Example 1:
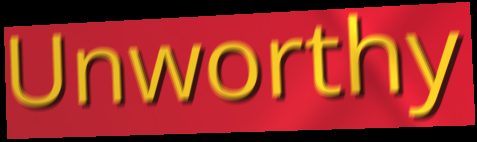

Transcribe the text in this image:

Unworthy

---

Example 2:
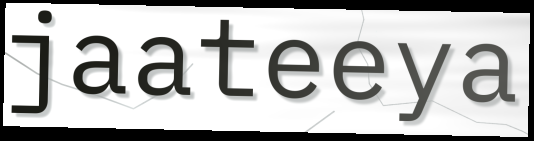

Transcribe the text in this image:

jaateeya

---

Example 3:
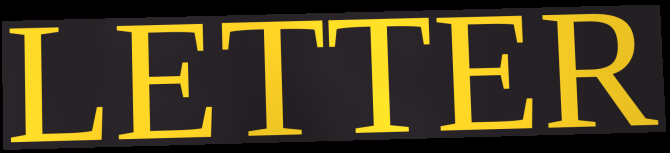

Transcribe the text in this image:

LETTER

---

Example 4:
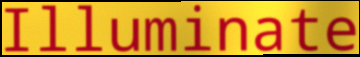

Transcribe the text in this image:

Illuminate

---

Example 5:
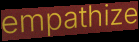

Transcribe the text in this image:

empathize